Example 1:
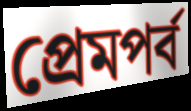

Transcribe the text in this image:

প্রেমপর্ব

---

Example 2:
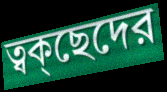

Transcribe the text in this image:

ত্বক্ছেদের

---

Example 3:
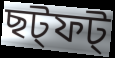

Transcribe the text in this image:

ছট্‌ফট্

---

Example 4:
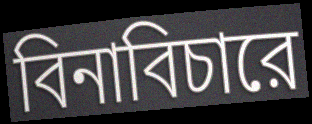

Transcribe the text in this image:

বিনাবিচারে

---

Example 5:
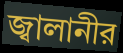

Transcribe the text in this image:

জ্বালানীর